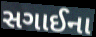
સગાઈના